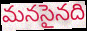
మనసైనది